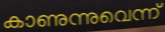
കാണുന്നുവെന്ന്